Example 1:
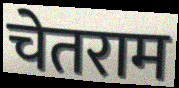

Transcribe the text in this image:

चेतराम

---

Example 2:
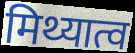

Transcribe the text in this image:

मिथ्‍यात्‍व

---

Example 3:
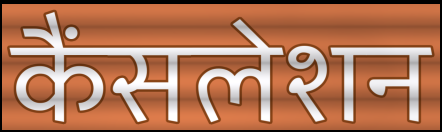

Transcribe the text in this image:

कैंसलेशन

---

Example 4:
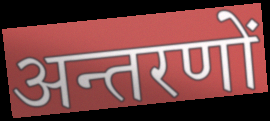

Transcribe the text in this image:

अन्तरणों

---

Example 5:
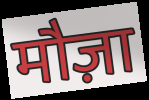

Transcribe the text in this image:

मौज़ा